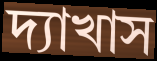
দ্যাখাস